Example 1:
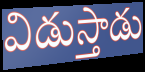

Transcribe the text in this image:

విడుస్తాడు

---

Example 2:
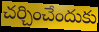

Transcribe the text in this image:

చర్చించేందుకు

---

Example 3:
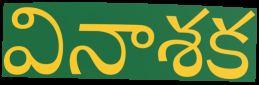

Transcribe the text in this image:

వినాశక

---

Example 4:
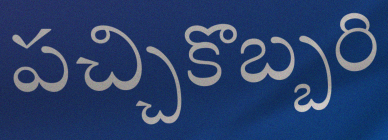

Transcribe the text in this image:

పచ్చికొబ్బరి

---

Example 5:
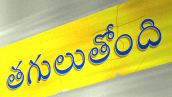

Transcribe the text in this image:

తగులుతోంది